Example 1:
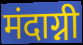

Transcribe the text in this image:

मंदाग्नी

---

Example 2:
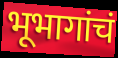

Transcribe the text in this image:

भूभागांचं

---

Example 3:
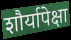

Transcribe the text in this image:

शौर्यापेक्षा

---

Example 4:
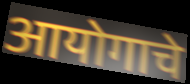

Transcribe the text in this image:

आयोगाचे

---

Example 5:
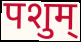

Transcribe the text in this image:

पशुम्